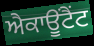
ਐਕਾਊਂਟੈਂਟ